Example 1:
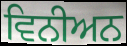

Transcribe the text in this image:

ਵਿਨੀਅਨ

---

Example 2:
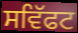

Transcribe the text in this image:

ਸਵਿੱਫਟ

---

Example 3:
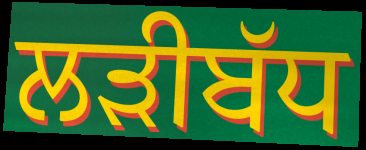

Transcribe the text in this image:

ਲੜੀਬੱਧ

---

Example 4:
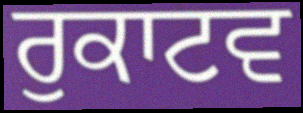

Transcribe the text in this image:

ਰੁਕਾਟਵ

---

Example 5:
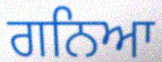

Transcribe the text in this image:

ਗਨਿਆ